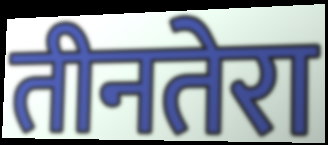
तीनतेरा